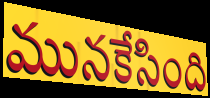
మునకేసింది